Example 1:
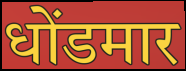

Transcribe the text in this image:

धोंडमार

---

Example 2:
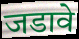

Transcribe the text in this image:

जडावे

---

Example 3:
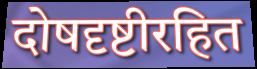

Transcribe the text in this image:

दोषदृष्टीरहित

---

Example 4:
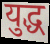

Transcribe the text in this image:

युद्ध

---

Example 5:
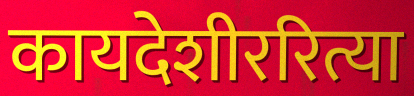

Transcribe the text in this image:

कायदेशीररित्या